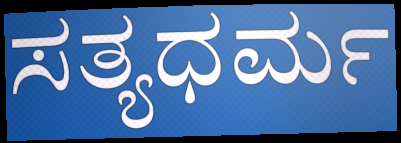
ಸತ್ಯಧರ್ಮ